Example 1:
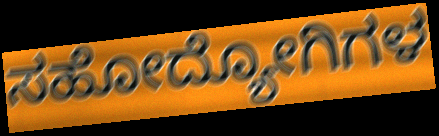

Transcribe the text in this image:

ಸಹೋದ್ಯೋಗಿಗಳ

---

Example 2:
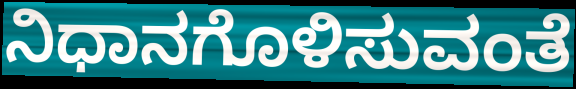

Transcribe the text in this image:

ನಿಧಾನಗೊಳಿಸುವಂತೆ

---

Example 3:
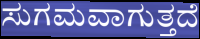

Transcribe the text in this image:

ಸುಗಮವಾಗುತ್ತದೆ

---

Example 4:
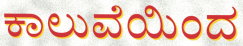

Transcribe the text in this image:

ಕಾಲುವೆಯಿಂದ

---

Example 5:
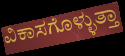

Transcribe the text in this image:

ವಿಕಾಸಗೊಳ್ಳುತ್ತಾ